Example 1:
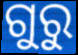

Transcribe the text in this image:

ଗୁରୁ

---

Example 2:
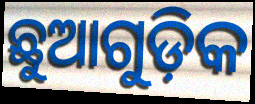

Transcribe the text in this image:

ଛୁଆଗୁଡ଼ିକ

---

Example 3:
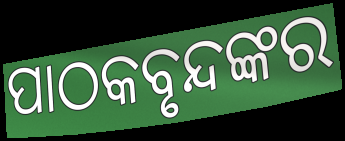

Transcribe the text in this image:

ପାଠକବୃନ୍ଦଙ୍କର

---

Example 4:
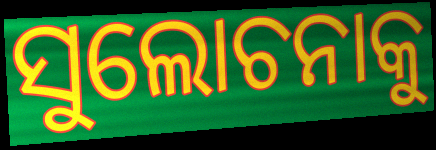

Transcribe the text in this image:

ସୁଲୋଚନାକୁ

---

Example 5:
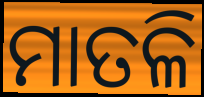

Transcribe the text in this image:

ମାତଳି